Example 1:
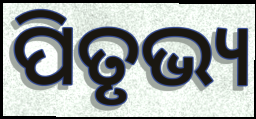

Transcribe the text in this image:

ପିତୃଭ୍ୟ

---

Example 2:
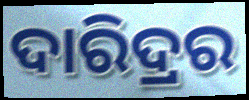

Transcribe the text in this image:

ଦାରିଦ୍ରର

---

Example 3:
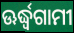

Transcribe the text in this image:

ଊର୍ଦ୍ଧ୍ୱଗାମୀ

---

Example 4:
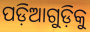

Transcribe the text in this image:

ପଡ଼ିଆଗୁଡ଼ିକୁ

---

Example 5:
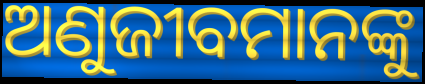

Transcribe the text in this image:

ଅଣୁଜୀବମାନଙ୍କୁ